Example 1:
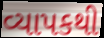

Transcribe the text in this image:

વ્યાપકથી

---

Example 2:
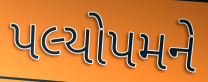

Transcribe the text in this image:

પલ્યોપમને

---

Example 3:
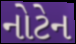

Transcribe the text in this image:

નોટેન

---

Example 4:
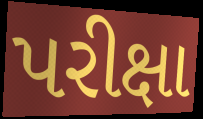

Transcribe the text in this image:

પરીક્ષા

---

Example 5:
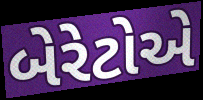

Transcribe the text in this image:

બેરેટોએ